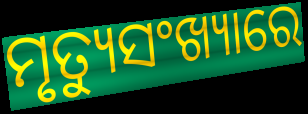
ମୃତ୍ୟୁସଂଖ୍ୟାରେ